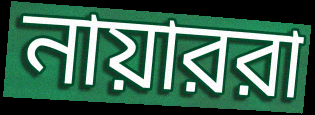
নায়াররা